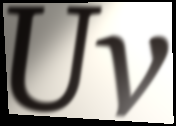
Uv